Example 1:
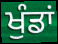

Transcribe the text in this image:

ਖੁੰਡਾਂ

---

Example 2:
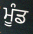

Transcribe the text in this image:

ਮੂੰਡ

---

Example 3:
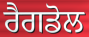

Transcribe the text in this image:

ਰੈਗਡੋਲ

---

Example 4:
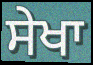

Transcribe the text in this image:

ਸੇਖਾ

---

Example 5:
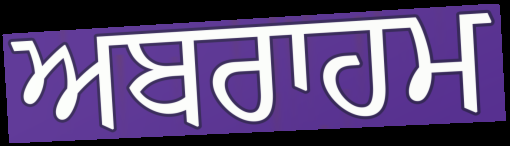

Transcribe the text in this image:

ਅਬਰਾਹਮ